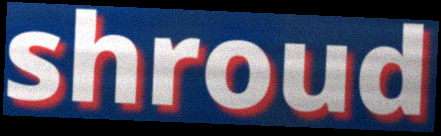
shroud